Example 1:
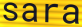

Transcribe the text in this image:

sara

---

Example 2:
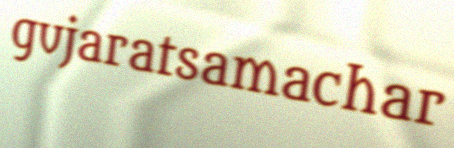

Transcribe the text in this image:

gujaratsamachar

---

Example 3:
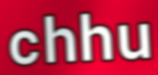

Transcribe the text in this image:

chhu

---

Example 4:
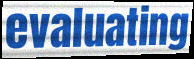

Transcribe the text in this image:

evaluating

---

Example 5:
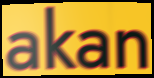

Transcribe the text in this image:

akan